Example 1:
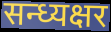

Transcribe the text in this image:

सन्ध्यक्षर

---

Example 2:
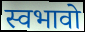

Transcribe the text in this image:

स्वभावो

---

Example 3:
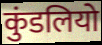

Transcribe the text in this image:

कुंडलियो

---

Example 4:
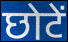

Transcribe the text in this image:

छोटें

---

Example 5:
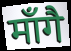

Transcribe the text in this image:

माँगै